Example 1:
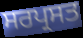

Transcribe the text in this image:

ਸਰਪ੍ਰਸਤ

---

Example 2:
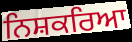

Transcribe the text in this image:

ਨਿਸ਼ਕਰਿਆ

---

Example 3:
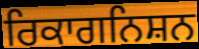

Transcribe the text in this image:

ਰਿਕਾਗਨਿਸ਼ਨ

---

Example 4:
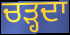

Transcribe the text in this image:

ਚੜ੍ਹਦਾ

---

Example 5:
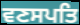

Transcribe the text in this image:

ਵਣਸਪਤਿ